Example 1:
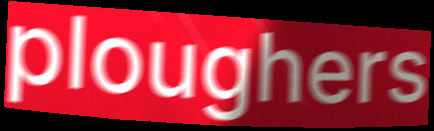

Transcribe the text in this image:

ploughers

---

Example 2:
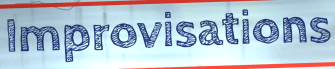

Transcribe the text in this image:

Improvisations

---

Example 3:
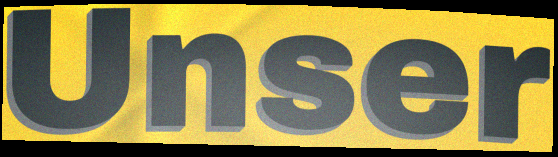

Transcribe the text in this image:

Unser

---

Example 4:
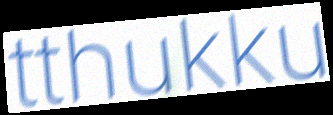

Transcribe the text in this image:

tthukku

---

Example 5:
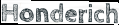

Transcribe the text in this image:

Honderich